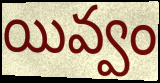
యివ్వం